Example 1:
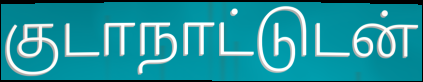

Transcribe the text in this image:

குடாநாட்டுடன்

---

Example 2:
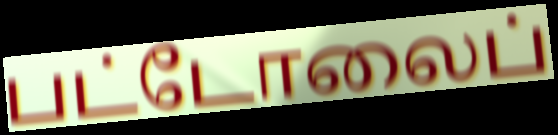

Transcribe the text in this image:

பட்டோலைப்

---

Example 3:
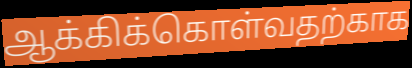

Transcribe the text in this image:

ஆக்கிக்கொள்வதற்காக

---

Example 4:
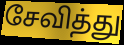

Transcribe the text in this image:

சேவித்து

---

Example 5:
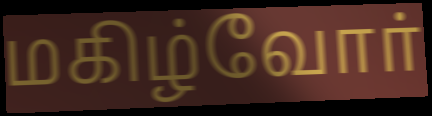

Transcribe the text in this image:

மகிழ்வோர்